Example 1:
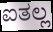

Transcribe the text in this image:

ಐತಲ್ಲ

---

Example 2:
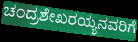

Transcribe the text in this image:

ಚಂದ್ರಶೇಖರಯ್ಯನವರಿಗೆ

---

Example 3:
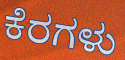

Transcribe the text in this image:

ಕೆರಗಳು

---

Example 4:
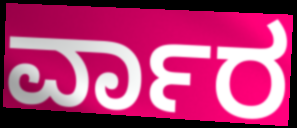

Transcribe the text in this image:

ರ್ವಾರ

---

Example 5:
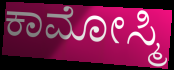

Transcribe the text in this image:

ಕಾಮೋಸ್ಮಿ